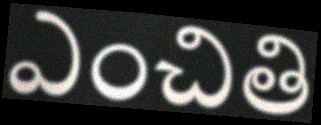
ఎంచితి